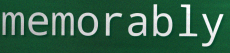
memorably